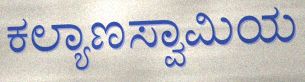
ಕಲ್ಯಾಣಸ್ವಾಮಿಯ